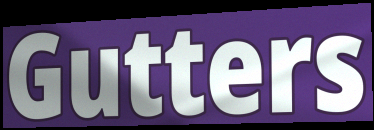
Gutters